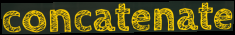
concatenate